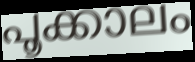
പൂക്കാലം